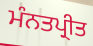
ਮੰਨਤਪ੍ਰੀਤ